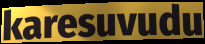
karesuvudu